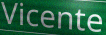
Vicente